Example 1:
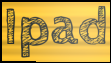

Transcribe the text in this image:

Ipad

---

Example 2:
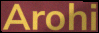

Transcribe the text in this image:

Arohi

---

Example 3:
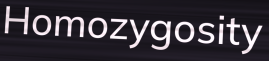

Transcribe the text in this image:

Homozygosity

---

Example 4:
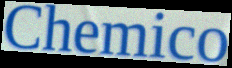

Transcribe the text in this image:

Chemico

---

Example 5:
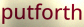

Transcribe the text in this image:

putforth